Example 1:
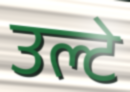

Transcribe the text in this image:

उल्टे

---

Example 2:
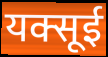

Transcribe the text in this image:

यक्सूई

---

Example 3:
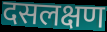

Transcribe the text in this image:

दसलक्षण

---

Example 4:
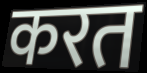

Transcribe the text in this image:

करत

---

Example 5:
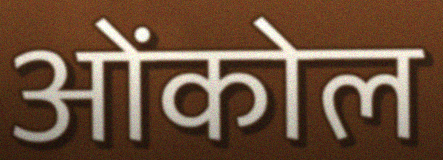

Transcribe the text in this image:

ओंकोल